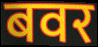
बवर